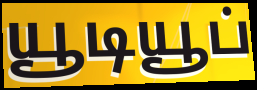
யூடியூப்